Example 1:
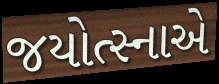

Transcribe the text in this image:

જયોત્સ્નાએ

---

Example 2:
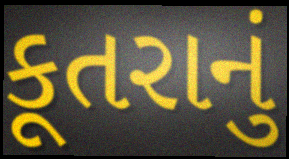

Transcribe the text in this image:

કૂતરાનું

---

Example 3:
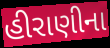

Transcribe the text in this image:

હીરાણીના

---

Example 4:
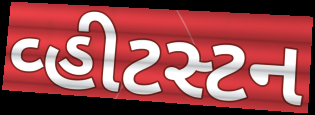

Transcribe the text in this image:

વ્હીટસ્ટન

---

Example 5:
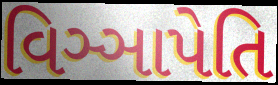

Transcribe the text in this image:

વિઞ્ઞાપેતિ